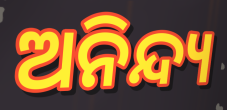
ଅନିନ୍ଦ୍ୟ